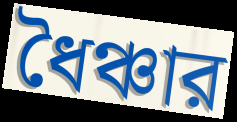
ধৈঞ্চার